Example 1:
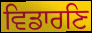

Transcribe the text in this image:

ਵਿਡਾਰਣਿ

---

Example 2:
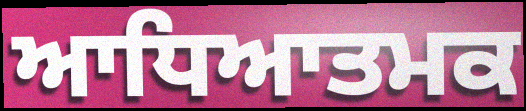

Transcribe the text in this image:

ਆਧਿਆਤਮਕ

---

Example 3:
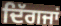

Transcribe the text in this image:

ਦਿੱਗਜਾਂ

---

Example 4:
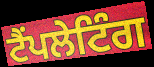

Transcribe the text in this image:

ਟੈਂਪਲੇਟਿੰਗ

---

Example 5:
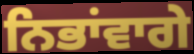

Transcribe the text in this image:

ਨਿਭਾਂਵਾਗੇ